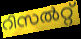
റിസൽറ്റ്